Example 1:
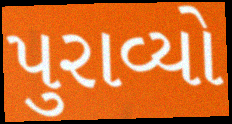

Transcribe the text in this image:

પુરાવ્યો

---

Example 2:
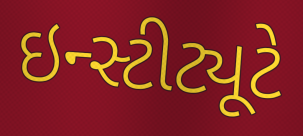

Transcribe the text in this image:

ઇન્સ્ટીટ્યૂટે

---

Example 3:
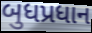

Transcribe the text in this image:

બુધપ્રધાન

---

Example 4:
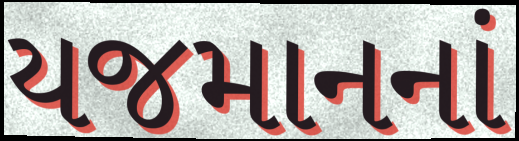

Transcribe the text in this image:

યજમાનનાં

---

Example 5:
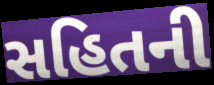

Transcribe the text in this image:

સહિતની